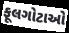
ફૂલગોટાઓ